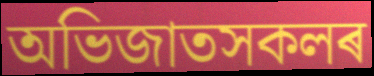
অভিজাতসকলৰ